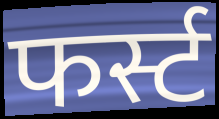
फर्स्‍ट